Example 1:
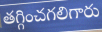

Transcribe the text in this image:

తగ్గించగలిగారు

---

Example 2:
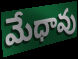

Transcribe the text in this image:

మేధావు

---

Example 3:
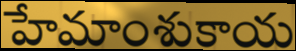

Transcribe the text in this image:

హేమాంశుకాయ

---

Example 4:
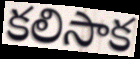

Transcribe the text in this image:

కలిసాక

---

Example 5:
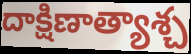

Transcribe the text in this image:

దాక్షిణాత్యాశ్చ